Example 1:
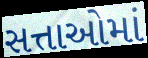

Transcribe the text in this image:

સત્તાઓમાં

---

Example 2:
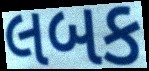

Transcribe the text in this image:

લબક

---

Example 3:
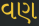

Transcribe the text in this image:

વણ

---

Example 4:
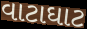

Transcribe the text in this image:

વાટાઘાટ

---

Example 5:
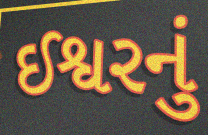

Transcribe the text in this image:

ઈશ્વરનું